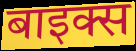
बाइक्स